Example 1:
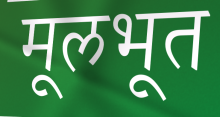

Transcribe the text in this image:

मूलभूत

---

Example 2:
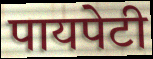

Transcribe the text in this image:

पायपेटी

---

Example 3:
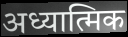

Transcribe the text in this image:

अध्यात्मिक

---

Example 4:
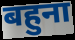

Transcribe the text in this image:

बहुना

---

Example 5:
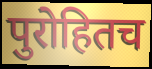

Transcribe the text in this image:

पुरोहितच